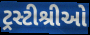
ટ્રસ્ટીશ્રીઓ